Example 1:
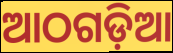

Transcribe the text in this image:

ଆଠଗଡ଼ିଆ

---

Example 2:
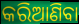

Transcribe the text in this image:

କରିଆଣିବା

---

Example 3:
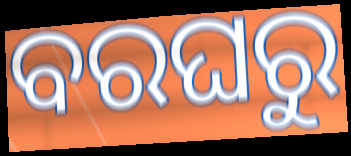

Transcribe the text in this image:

ବରଘରୁ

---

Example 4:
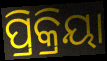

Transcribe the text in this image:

ପ୍ରିକ୍ରିୟା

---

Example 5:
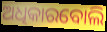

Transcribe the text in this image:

ଅଧିକାରବୋଲି